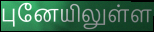
புனேயிலுள்ள